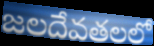
జలదేవతలలో